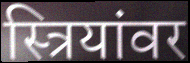
स्त्रियांवर